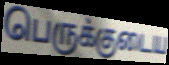
பெருக்குடைய